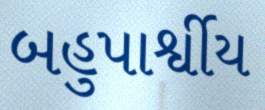
બહુપાર્શ્વીય